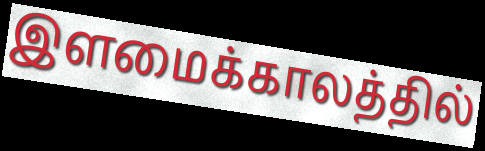
இளமைக்காலத்தில்